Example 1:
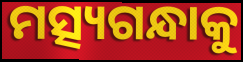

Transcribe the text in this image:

ମତ୍ସ୍ୟଗନ୍ଧାକୁ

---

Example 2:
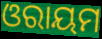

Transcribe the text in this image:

ଓରାୟମ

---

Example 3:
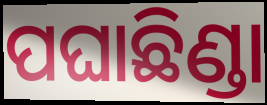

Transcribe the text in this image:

ପଘାଛିଣ୍ଡା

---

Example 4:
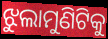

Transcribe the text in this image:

ଝୁଲାମୁଣିଟିକୁ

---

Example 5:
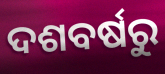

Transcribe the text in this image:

ଦଶବର୍ଷରୁ